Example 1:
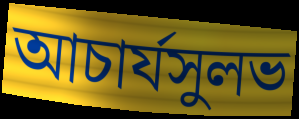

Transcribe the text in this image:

আচার্যসুলভ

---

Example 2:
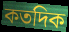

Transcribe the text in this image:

কতদিক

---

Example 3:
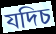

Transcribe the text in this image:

যদিচ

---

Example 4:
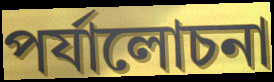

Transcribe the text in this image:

পর্যালোচনা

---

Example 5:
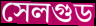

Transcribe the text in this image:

সেলগুড